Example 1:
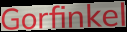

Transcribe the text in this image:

Gorfinkel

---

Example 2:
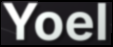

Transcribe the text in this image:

Yoel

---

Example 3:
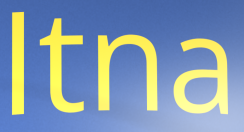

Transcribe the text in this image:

Itna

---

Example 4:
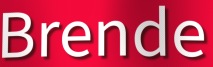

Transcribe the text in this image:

Brende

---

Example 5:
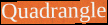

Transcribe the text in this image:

Quadrangle